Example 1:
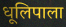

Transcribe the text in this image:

धूलिपाला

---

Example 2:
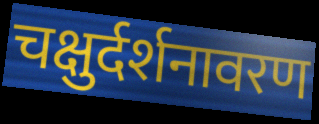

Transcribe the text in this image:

चक्षुर्दर्शनावरण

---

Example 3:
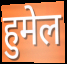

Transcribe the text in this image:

हुमेल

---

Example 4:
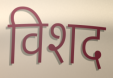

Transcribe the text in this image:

विशद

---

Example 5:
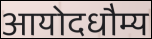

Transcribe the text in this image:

आयोदधौम्य